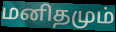
மனிதமும்